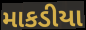
માકડીયા